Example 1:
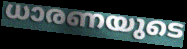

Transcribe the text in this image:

ധാരണയുടെ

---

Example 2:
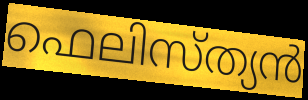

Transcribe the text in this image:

ഫെലിസ്ത്യൻ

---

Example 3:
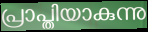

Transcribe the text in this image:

പ്രാപ്തിയാകുന്നു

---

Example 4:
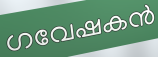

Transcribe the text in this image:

ഗവേഷകൻ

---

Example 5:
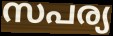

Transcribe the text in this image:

സപര്യ